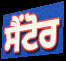
ਸੈਂਟੋਰ